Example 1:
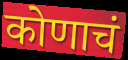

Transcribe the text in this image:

कोणाचं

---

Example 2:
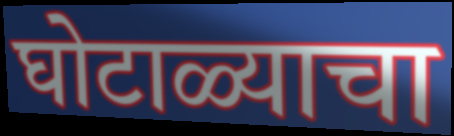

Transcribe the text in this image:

घोटाळ्याचा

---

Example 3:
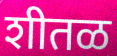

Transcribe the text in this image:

शीतळ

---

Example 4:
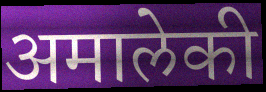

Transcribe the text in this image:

अमालेकी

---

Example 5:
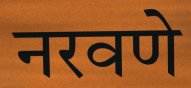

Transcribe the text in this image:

नरवणे